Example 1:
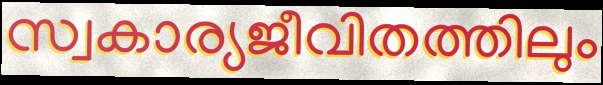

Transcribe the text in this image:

സ്വകാര്യജീവിതത്തിലും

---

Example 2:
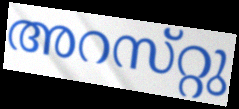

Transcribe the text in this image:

അറസ്‌റ്റു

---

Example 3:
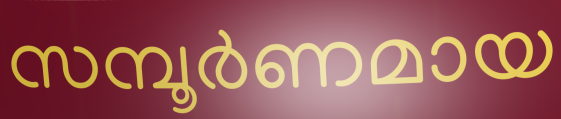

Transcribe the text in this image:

സമ്പൂർണമായ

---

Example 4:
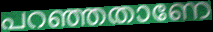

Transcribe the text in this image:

പറഞ്ഞതാണേ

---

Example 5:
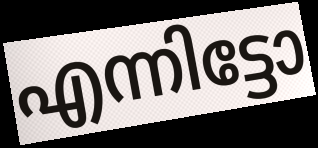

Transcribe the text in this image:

എന്നിട്ടോ